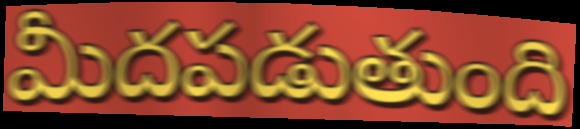
మీదపడుతుంది